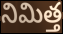
నిమిత్త